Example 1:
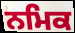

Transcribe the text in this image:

ਨਮਿਕ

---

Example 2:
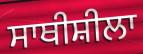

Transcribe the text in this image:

ਸਾਥੀਸ਼ੀਲਾ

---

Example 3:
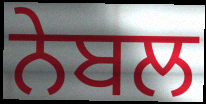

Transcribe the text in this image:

ਨੇਬਲ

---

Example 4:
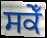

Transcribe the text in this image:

ਸਕੇਁ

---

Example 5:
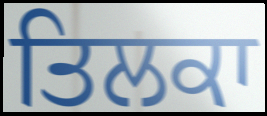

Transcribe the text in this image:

ਤਿਲਕਾ